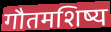
गौतमशिष्य